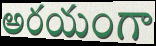
అరయంగా